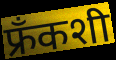
फ्रँकशी